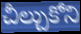
చీల్చుకోని